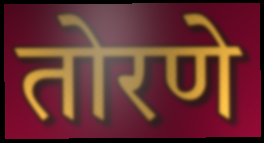
तोरणे